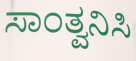
ಸಾಂತ್ವನಿಸಿ